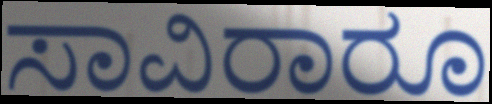
ಸಾವಿರಾರೂ